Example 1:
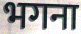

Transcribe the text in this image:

भगना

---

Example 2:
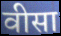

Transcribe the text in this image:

वीसा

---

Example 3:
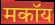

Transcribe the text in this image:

मकॉय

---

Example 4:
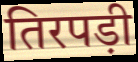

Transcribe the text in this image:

तिरपड़ी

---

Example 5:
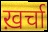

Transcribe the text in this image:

ख़र्चा